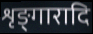
शृङ्गारादि